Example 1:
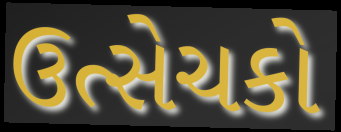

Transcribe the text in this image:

ઉત્સેચકો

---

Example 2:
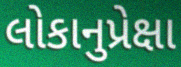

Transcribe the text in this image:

લોકાનુપ્રેક્ષા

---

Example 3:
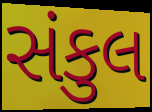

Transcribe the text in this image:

સંકુલ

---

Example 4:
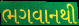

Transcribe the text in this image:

ભગવાનથી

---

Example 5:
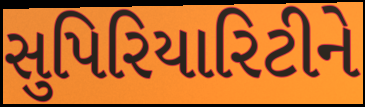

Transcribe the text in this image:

સુપિરિયારિટીને